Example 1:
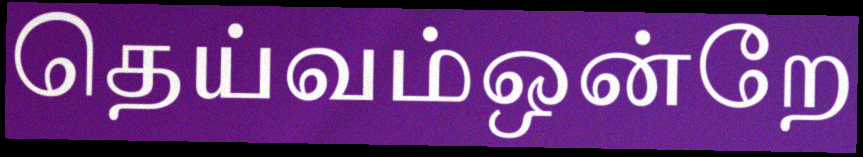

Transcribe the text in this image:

தெய்வம்ஒன்றே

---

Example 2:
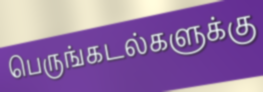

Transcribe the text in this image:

பெருங்கடல்களுக்கு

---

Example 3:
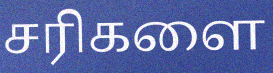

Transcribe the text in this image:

சரிகளை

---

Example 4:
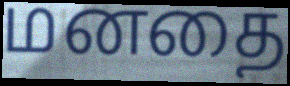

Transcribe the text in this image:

மனதை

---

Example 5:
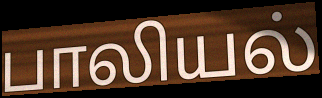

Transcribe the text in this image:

பாலியல்